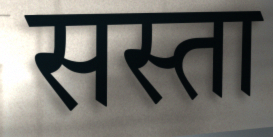
सस्‍ता